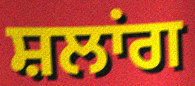
ਸ਼ਲਾਂਗ